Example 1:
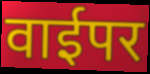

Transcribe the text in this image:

वाईपर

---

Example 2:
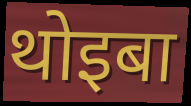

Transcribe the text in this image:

थोइबा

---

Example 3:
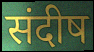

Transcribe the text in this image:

संदीष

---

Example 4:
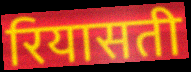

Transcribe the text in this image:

रियासती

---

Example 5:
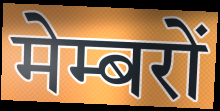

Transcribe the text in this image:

मेम्बरों